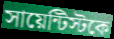
সায়েন্টিস্টকে